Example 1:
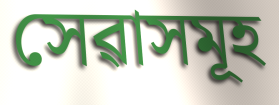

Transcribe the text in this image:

সেৱাসমূহ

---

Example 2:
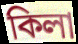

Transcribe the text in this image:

কিলা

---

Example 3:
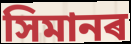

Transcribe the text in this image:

সিমানৰ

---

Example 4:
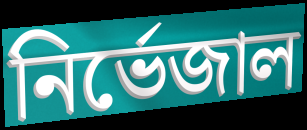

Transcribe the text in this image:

নিৰ্ভেজাল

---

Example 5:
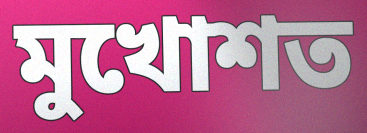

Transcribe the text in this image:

মুখোশত